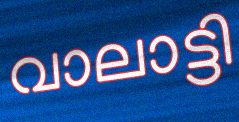
വാലാട്ടി